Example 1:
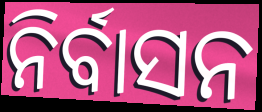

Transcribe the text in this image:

ନିର୍ବାସନ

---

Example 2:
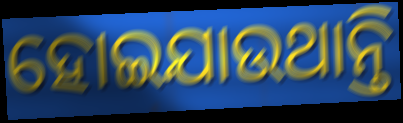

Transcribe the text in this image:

ହୋଇଯାଉଥାନ୍ତି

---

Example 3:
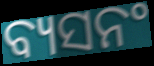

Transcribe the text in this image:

ବ୍ୟସନଂ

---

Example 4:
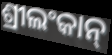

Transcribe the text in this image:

ଶ୍ରୀଲଂକାନ୍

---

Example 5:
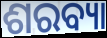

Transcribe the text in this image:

ଶରବ୍ୟା